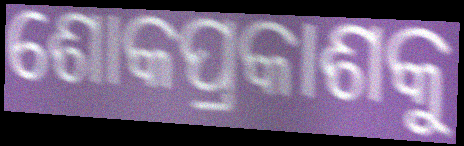
ଶୋକପ୍ରକାଶକୁ